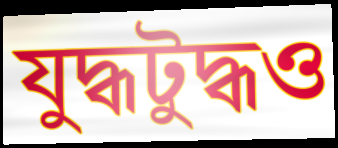
যুদ্ধটুদ্ধও